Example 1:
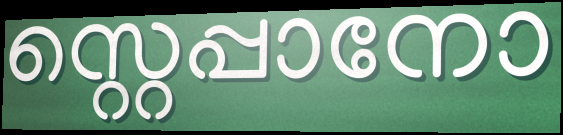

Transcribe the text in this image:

സ്റ്റെപ്പാനോ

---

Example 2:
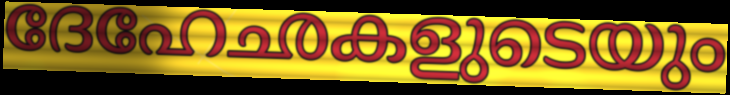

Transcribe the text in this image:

ദേഹേഛകളുടെയും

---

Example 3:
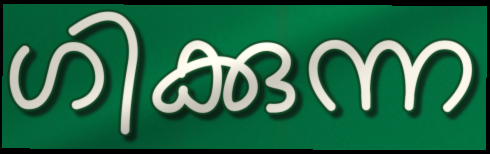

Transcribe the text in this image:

ഗിക്കുന്ന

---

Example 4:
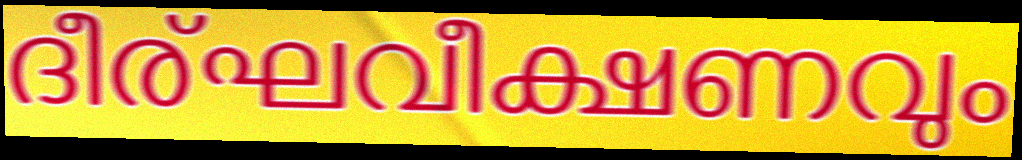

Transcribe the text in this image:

ദീര്ഘവീക്ഷണവും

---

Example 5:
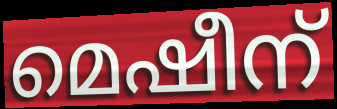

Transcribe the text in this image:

മെഷീന്